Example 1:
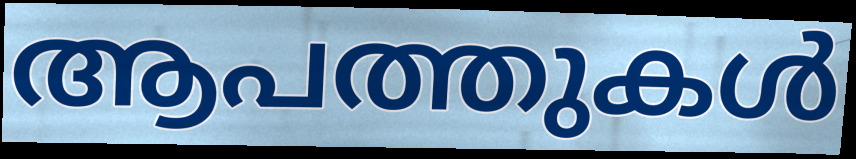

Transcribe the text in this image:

ആപത്തുകൾ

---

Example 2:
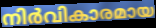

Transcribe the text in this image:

നിർവികാരമായ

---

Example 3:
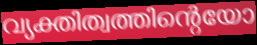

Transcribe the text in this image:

വ്യക്തിത്വത്തിന്റെയോ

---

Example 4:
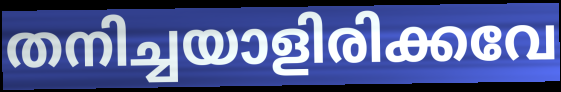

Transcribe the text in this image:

തനിച്ചയാളിരിക്കവേ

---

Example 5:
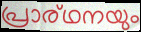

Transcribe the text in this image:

പ്രാര്ഥനയും